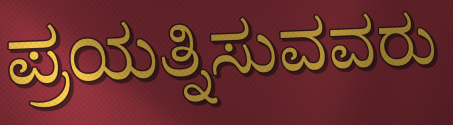
ಪ್ರಯತ್ನಿಸುವವರು